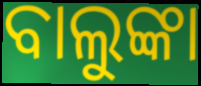
ବାଲୁଙ୍କା